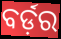
ବର୍ଡ଼ର